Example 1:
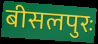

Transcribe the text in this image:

बीसलपुरः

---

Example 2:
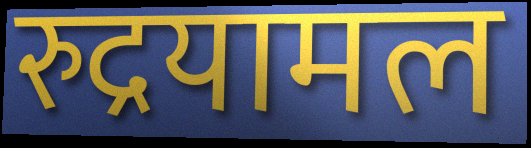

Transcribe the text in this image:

रुद्रयामल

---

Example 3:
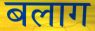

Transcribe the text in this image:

बलाग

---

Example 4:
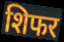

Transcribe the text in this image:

शिफर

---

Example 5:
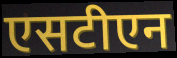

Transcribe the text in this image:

एसटीएन